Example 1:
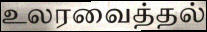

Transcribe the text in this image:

உலரவைத்தல்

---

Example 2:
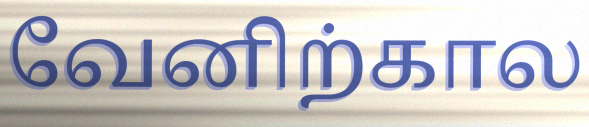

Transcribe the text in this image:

வேனிற்கால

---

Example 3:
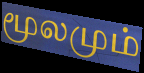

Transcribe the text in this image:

மூலமும்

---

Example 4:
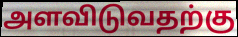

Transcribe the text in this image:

அளவிடுவதற்கு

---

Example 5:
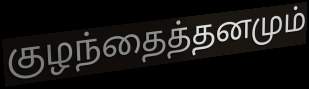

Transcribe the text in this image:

குழந்தைத்தனமும்